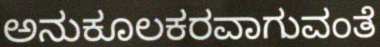
ಅನುಕೂಲಕರವಾಗುವಂತೆ